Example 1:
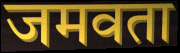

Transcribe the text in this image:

जमवता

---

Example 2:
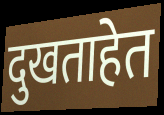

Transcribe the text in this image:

दुखताहेत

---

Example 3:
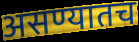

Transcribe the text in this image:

असण्यातच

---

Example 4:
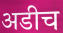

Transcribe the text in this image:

अडीच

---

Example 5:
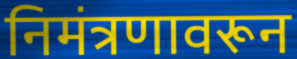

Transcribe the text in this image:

निमंत्रणावरून